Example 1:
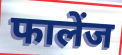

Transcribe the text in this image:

फालेंज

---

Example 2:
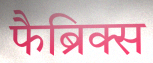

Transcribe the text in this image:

फैब्रिक्स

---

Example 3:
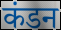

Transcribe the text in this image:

कंडन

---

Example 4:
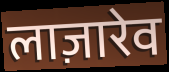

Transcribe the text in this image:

लाज़ारेव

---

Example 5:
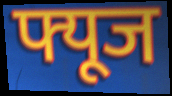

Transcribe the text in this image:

फ्यूज